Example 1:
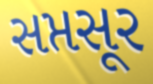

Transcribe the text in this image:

સપ્તસૂર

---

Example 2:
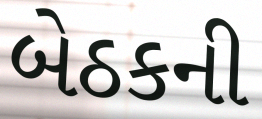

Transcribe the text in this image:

બેઠકની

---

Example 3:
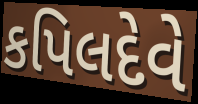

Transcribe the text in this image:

કપિલદેવે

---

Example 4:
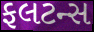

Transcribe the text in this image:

ફલટન્સ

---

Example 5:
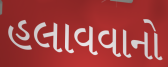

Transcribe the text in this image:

હલાવવાનો